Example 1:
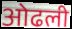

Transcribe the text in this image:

ओढली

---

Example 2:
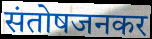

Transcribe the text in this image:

संतोषजनकर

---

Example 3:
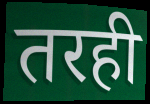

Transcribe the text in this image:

तरही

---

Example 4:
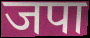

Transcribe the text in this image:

जपा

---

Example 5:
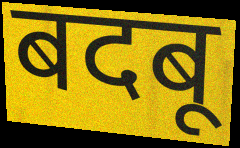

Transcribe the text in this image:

बदबू